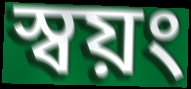
স্বয়ং